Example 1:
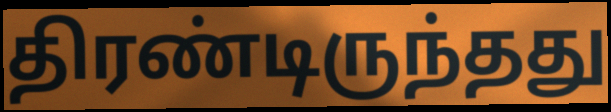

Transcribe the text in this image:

திரண்டிருந்தது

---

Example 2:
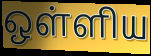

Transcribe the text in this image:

ஒள்ளிய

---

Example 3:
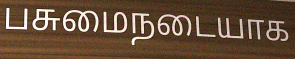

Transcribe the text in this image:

பசுமைநடையாக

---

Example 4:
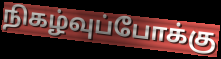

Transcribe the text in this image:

நிகழ்வுப்போக்கு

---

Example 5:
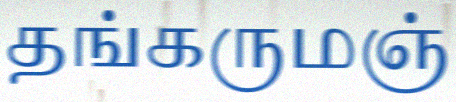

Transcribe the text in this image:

தங்கருமஞ்